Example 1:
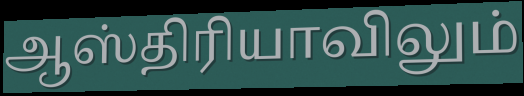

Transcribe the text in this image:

ஆஸ்திரியாவிலும்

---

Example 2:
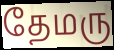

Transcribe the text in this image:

தேமரு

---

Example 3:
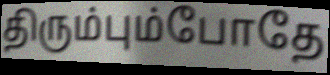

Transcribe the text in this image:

திரும்பும்போதே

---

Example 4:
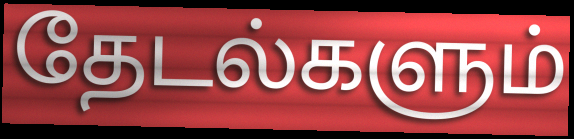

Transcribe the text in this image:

தேடல்களும்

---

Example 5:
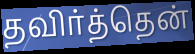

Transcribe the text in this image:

தவிர்த்தென்